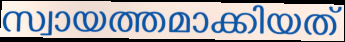
സ്വായത്തമാക്കിയത്